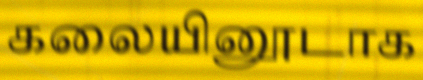
கலையினூடாக